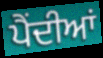
ਪੈਂਦੀਆਂ